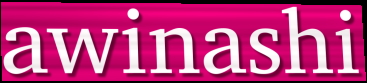
awinashi